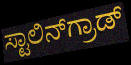
ಸ್ಟಾಲಿನ್‌ಗ್ರಾಡ್